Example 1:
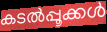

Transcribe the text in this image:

കടൽപ്പൂക്കൾ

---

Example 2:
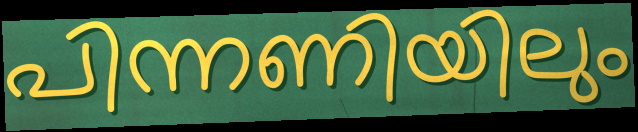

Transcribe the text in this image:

പിന്നണിയിലും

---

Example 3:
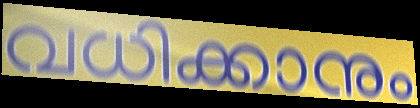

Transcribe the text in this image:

വധിക്കാനും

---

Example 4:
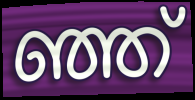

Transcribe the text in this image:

ഞ്ഞ്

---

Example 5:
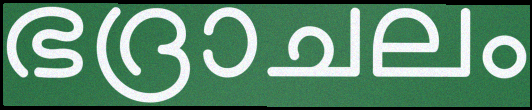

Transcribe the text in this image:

ഭദ്രാചലം